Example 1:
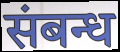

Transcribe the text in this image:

संबन्ध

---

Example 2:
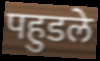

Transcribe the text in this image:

पहुडले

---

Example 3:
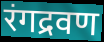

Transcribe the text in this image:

रंगद्रवण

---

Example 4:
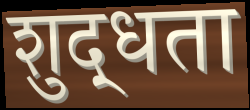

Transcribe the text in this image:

शुद्धता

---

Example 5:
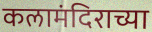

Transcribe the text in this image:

कलामंदिराच्या